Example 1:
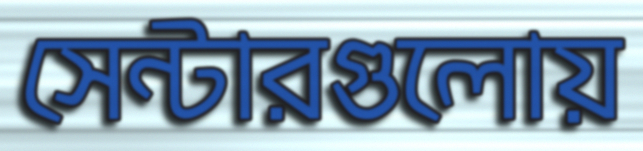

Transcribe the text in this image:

সেন্টারগুলোয়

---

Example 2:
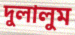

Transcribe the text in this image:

দুলালুম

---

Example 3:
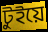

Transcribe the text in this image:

টুইয়ে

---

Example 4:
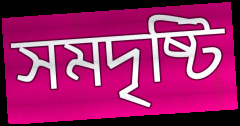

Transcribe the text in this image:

সমদৃষ্টি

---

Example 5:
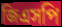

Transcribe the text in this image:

জিএসপি